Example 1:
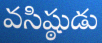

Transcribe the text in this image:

వసిష్ఠుడు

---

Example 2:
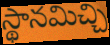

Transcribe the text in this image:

స్థానమిచ్చి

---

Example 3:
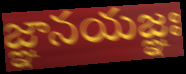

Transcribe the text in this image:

జ్ఞానయజ్ఞః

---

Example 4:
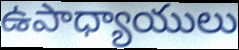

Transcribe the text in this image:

ఉపాధ్యాయులు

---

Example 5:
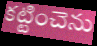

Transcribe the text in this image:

కట్టించెను